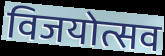
विजयोत्सव